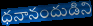
ధనానందుడిని